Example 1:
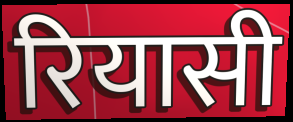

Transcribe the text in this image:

रियासी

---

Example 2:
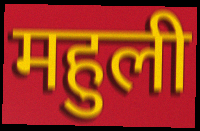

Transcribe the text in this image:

महुली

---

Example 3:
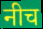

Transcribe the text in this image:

नीच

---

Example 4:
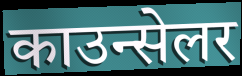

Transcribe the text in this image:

काउन्सेलर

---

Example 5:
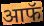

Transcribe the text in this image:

आफॅ